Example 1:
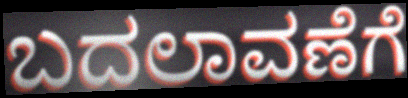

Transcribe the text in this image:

ಬದಲಾವಣೆಗೆ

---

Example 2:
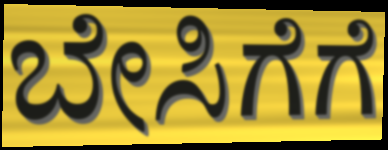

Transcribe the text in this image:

ಬೇಸಿಗೆಗೆ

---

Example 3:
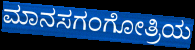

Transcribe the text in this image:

ಮಾನಸಗಂಗೋತ್ರಿಯ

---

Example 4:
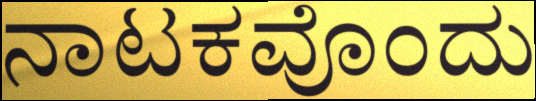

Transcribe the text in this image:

ನಾಟಕವೊಂದು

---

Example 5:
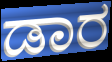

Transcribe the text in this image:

ಡಾರ